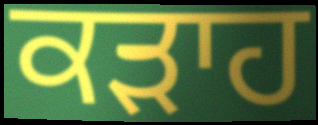
ਕੜਾਹ